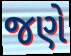
જણે